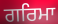
ਗਰਿਮਾ